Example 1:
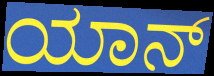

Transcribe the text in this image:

ಯಾನ್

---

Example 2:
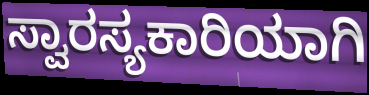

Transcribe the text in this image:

ಸ್ವಾರಸ್ಯಕಾರಿಯಾಗಿ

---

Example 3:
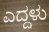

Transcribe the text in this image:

ಎದ್ದಳು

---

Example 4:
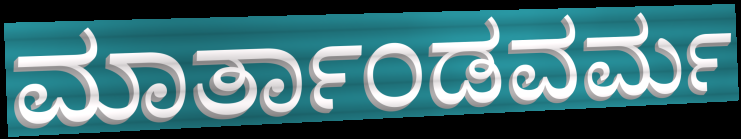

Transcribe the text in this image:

ಮಾರ್ತಾಂಡವರ್ಮ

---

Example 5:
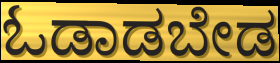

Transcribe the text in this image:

ಓಡಾಡಬೇಡ